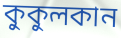
কুকুলকান